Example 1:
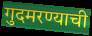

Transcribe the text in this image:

गुदमरण्याची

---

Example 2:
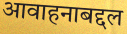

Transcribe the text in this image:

आवाहनाबद्दल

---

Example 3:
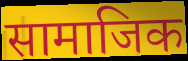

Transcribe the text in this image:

सामाजिक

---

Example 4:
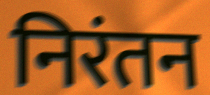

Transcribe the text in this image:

निरंतन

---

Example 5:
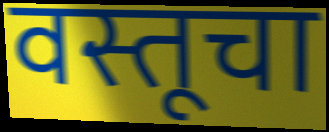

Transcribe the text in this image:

वस्तूचा